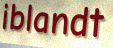
iblandt